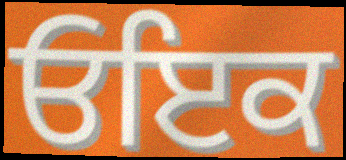
ਓਇਕ